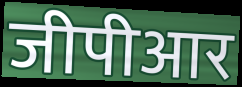
जीपीआर